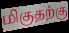
மிகுதற்கு